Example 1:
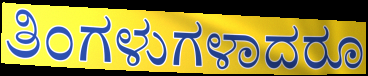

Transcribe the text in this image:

ತಿಂಗಳುಗಳಾದರೂ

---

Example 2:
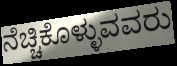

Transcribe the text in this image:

ನೆಚ್ಚಿಕೊಳ್ಳುವವರು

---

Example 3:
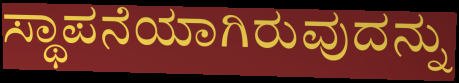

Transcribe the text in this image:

ಸ್ಥಾಪನೆಯಾಗಿರುವುದನ್ನು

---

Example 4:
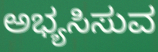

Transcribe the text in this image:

ಅಭ್ಯಸಿಸುವ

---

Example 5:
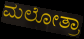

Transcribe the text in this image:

ಮಲೋತ್ರಾ